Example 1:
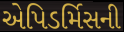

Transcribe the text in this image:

એપિડર્મિસની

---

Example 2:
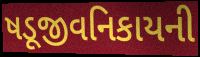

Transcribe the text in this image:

ષડૂજીવનિકાયની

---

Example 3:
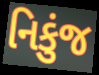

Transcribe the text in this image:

નિકુંજ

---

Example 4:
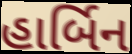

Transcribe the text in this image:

હાર્બિન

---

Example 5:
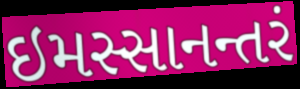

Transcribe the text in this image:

ઇમસ્સાનન્તરં